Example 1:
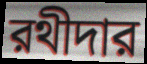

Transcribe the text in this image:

রথীদার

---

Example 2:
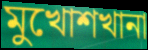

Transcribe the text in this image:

মুখোশখানা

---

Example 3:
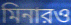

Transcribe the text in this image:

মিনারও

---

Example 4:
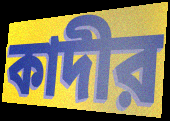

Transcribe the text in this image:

কাদীর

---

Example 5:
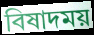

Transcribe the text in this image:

বিষাদময়